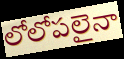
లోలోపలైనా